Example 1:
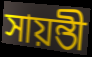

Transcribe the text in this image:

সায়ন্তী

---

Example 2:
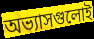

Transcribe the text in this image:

অভ্যাসগুলোই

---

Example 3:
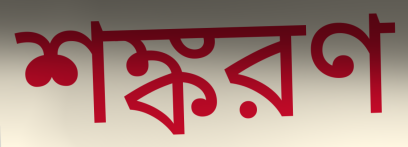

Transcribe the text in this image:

শঙ্করণ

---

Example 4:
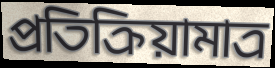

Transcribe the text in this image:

প্রতিক্রিয়ামাত্র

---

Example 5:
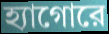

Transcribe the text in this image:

হ্যাগোরে